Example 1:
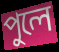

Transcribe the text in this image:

পুলে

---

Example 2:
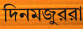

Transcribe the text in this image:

দিনমজুররা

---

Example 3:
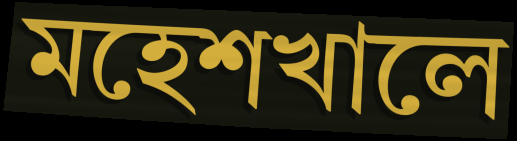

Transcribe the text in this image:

মহেশখালে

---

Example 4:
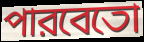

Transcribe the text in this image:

পারবেতো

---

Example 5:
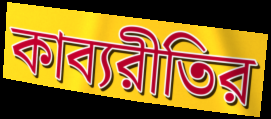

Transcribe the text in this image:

কাব্যরীতির